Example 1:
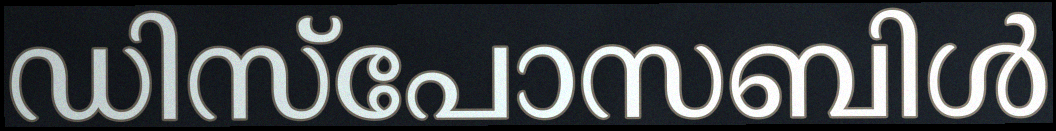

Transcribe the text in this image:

ഡിസ്പോസബിൾ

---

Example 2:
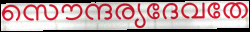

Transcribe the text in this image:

സൌന്ദര്യദേവതേ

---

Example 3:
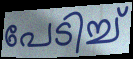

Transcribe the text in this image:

പേടിച്ച്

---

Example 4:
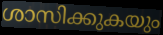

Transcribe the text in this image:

ശാസിക്കുകയും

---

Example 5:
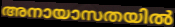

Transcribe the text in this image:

അനായാസതയിൽ